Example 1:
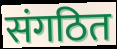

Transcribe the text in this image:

संगठित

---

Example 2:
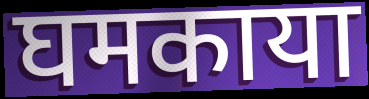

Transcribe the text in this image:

घमकाया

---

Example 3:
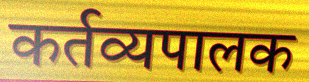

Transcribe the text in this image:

कर्तव्यपालक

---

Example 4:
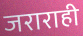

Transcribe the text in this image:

जराराही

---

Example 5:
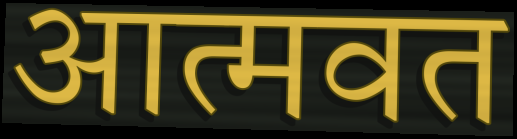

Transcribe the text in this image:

आत्मवत